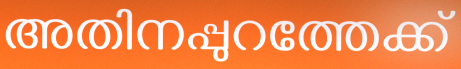
അതിനപ്പുറത്തേക്ക്